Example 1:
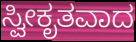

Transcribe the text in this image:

ಸ್ವೀಕೃತವಾದ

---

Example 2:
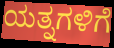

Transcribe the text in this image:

ಯತ್ನಗಳಿಗೆ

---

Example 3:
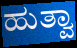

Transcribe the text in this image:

ಹುತ್ವಾ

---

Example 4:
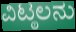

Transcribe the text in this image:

ವಿಟ್ಠಲನು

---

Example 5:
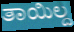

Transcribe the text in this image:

ತಾಯಿಲ್ದ